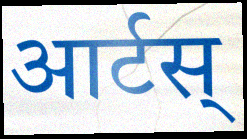
आर्टस्